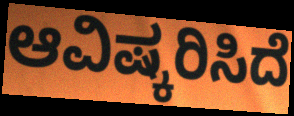
ಆವಿಷ್ಕರಿಸಿದೆ